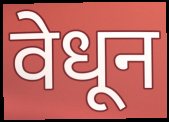
वेधून